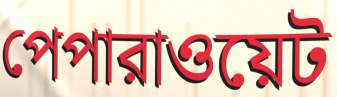
পেপারাওয়েট